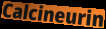
Calcineurin